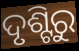
ଦୃଶ୍ଟିରୁ